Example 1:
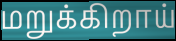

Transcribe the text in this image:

மறுக்கிறாய்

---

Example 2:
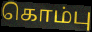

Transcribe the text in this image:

கொம்பு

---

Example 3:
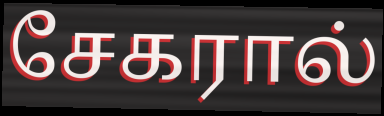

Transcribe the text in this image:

சேகரால்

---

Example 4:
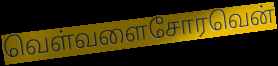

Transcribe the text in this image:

வெள்வளைசோரவென்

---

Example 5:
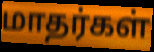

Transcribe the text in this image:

மாதர்கள்